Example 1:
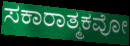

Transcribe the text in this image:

ಸಕಾರಾತ್ಮಕವೋ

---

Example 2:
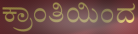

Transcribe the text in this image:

ಕ್ರಾಂತಿಯಿಂದ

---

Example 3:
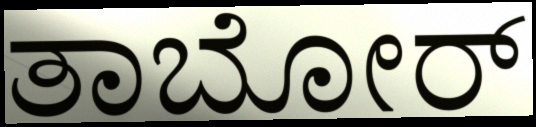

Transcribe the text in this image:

ತಾಬೋರ್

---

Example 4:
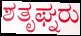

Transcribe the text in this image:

ಶತೃಘ್ನರು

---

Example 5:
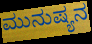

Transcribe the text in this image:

ಮುನುಷ್ಯನ